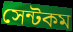
সেন্টকম